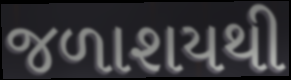
જળાશયથી